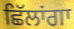
ਛਿੱਲਾਂਗਾ